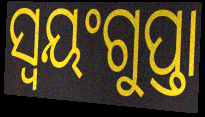
ସ୍ୱୟଂଗୁପ୍ତା